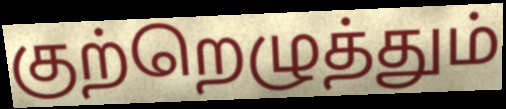
குற்றெழுத்தும்